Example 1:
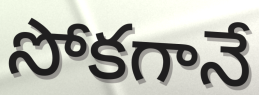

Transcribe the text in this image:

సోకగానే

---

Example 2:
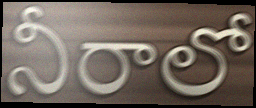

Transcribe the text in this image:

నీరాలో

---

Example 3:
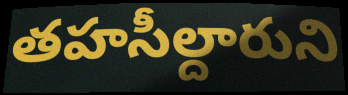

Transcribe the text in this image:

తహసీల్దారుని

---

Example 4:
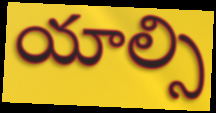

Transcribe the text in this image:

యాల్సి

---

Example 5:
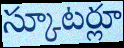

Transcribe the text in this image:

స్కూటర్లూ